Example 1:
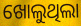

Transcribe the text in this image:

ଖୋଲୁଥିଲା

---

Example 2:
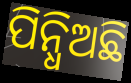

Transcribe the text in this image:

ପିନ୍ଧିଅଛି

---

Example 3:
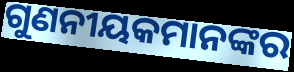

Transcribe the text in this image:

ଗୁଣନୀୟକମାନଙ୍କର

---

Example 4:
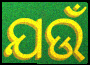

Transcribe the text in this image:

ଯଉଁ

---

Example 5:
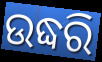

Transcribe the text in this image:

ଉଦ୍ଧରି